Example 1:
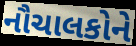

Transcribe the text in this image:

નૌચાલકોને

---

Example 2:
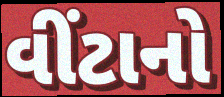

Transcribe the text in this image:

વીંટાનો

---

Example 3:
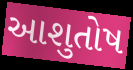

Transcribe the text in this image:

આશુતોષ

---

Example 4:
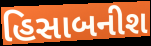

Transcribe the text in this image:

હિસાબનીશ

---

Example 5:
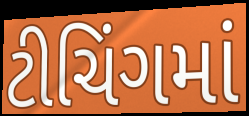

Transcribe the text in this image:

ટીચિંગમાં